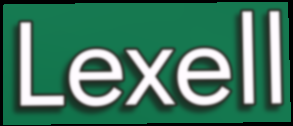
Lexell